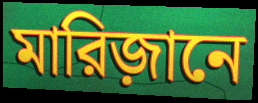
মারিজ়ানে